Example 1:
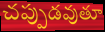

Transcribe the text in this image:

చప్పుడవుతూ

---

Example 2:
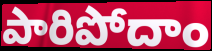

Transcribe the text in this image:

పారిపోదాం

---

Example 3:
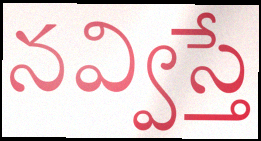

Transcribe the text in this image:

నవ్విస్తే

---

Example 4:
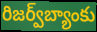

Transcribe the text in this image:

రిజర్వ్‌బ్యాంకు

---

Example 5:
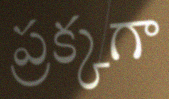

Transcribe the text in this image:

ప్రక్కగా